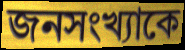
জনসংখ্যাকে